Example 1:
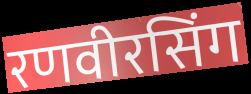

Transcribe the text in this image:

रणवीरसिंग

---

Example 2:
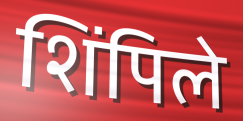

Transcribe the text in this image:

शिंपिले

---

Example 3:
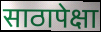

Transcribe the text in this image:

साठापेक्षा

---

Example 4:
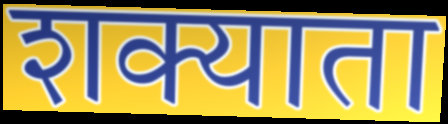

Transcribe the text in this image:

शक्याता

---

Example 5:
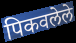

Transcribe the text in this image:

पिकवलेले